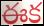
ఈక